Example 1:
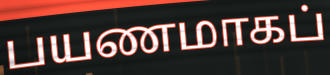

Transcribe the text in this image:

பயணமாகப்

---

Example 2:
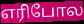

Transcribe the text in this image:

எரிபோல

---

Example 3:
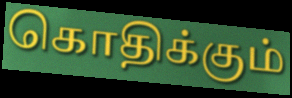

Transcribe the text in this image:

கொதிக்கும்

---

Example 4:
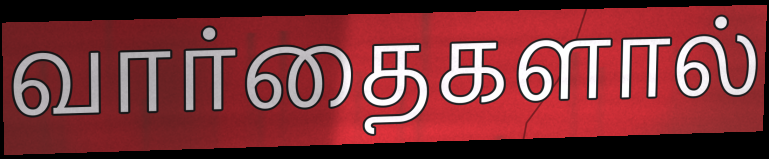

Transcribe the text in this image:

வார்தைகளால்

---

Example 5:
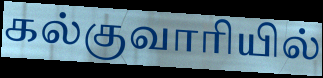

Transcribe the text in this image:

கல்குவாரியில்